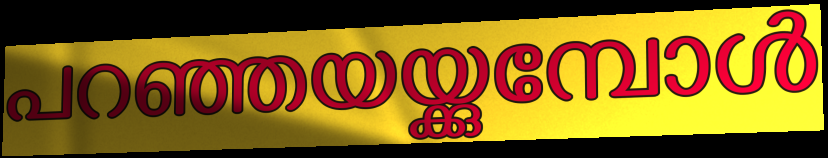
പറഞ്ഞയയ്ക്കുമ്പോൾ